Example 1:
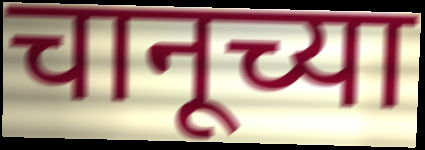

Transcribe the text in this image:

चानूच्या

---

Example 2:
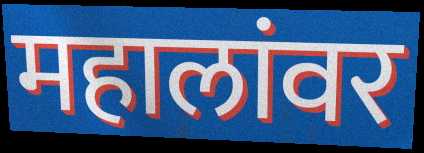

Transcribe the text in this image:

महालांवर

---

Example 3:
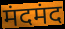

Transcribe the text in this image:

मंदमंद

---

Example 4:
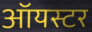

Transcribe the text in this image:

ऑयस्टर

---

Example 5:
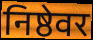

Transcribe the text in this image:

निष्ठेवर